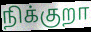
நிக்குறா